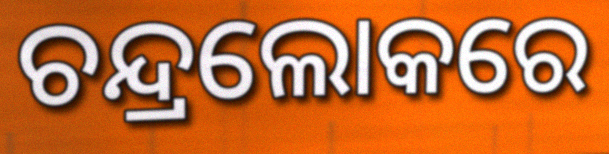
ଚନ୍ଦ୍ରଲୋକରେ